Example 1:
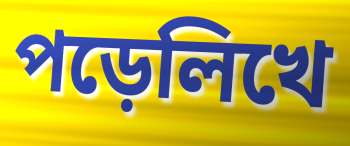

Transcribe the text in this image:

পড়েলিখে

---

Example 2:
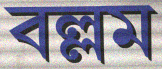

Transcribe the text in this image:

বল্লম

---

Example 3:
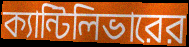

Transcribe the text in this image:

ক্যান্টিলিভারের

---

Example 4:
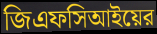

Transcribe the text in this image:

জিএফসিআইয়ের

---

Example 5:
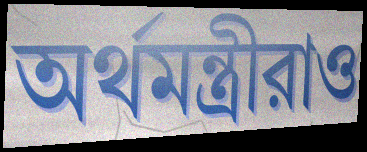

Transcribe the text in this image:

অর্থমন্ত্রীরাও